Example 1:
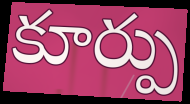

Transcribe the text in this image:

కూర్పు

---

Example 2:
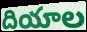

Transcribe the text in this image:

దియాల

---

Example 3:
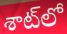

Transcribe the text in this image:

శాట్‌లో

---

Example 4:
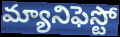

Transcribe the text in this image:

మ్యానిఫెస్టో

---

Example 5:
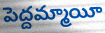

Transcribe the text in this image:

పెద్దమ్మాయీ